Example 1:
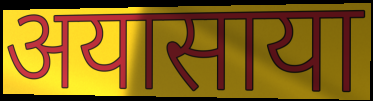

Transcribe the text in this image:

अयासाया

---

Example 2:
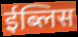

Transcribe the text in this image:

ईब्लिस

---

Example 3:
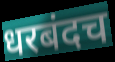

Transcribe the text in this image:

धरबंदच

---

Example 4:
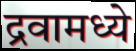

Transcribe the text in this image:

द्रवामध्ये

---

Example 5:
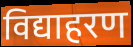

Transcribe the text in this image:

विद्याहरण